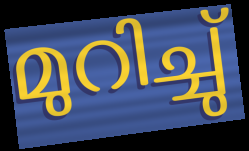
മുറിച്ചു്